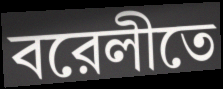
বরেলীতে